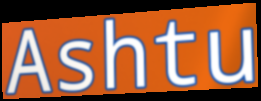
Ashtu